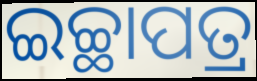
ଇଚ୍ଛାପତ୍ର